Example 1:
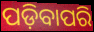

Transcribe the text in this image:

ପଡ଼ିବାପରି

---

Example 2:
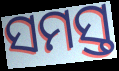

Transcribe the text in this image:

ସମସ୍ତ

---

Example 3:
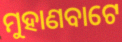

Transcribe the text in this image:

ମୁହାଣବାଟେ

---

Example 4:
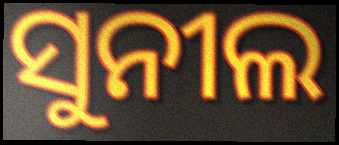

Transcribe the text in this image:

ସୁନୀଲ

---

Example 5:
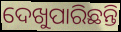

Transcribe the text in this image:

ଦେଖୁପାରିଛନ୍ତି